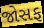
જોસફ